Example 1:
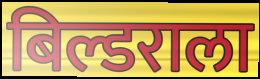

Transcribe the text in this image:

बिल्डराला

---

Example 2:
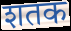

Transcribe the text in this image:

शतक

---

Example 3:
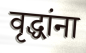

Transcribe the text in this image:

वृद्धांना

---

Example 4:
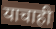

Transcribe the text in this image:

याचाही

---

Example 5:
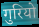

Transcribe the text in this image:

गुरियो